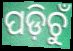
ପଡ଼ିଚୁଁ